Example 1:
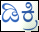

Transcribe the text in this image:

ಡಿಕ್ರಿ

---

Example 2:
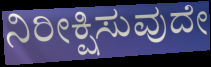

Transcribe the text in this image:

ನಿರೀಕ್ಷಿಸುವುದೇ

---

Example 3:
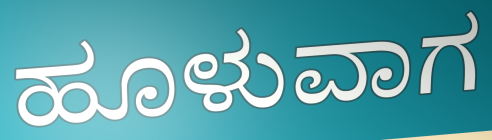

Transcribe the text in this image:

ಹೂಳುವಾಗ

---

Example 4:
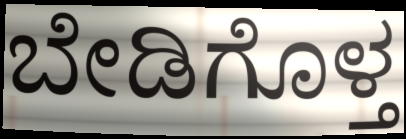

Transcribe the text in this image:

ಬೇಡಿಗೊಳ್ತ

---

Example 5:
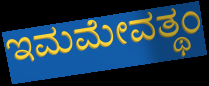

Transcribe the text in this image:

ಇಮಮೇವತ್ಥಂ